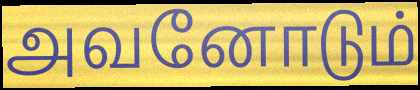
அவனோடும்